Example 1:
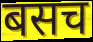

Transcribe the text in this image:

बसच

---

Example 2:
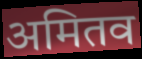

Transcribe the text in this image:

अमितव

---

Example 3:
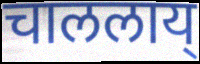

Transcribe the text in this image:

चाललाय्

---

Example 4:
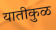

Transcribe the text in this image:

यातीकुळ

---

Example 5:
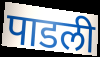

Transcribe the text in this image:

पाडली